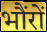
भौंरों